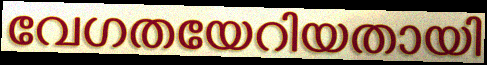
വേഗതയേറിയതായി